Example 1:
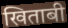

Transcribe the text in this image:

खिताबी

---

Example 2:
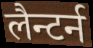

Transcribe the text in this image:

लैन्टर्न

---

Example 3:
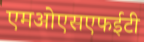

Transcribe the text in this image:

एमओएसएफईटी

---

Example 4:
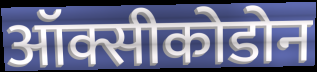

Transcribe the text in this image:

ऑक्सीकोडोन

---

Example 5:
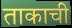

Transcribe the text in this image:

ताकाची